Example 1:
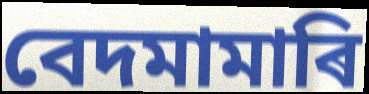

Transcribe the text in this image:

বেদমামাৰি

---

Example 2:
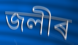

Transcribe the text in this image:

জলীৰ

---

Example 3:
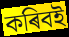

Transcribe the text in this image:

কৰিবই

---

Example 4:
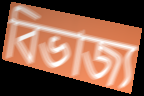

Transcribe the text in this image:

বিভাজ্য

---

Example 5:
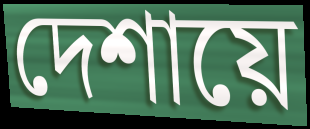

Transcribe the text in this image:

দেশায়ে